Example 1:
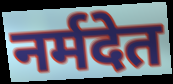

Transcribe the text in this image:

नर्मदेत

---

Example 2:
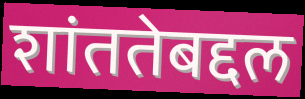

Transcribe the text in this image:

शांततेबद्दल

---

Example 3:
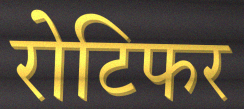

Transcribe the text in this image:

रोटिफर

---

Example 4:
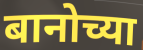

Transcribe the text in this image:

बानोच्या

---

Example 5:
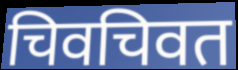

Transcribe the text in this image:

चिवचिवत